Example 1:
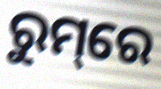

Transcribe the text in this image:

ରୁମ୍‌ରେ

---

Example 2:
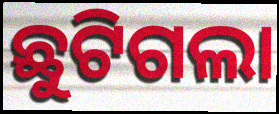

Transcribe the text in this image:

ଛୁଟିଗଲା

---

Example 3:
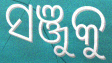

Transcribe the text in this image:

ସଞ୍ଜୁକୁ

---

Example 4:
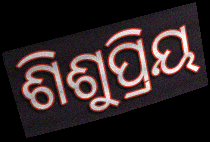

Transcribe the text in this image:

ଶିଶୁପ୍ରିୟ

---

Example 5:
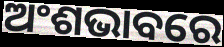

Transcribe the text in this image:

ଅଂଶଭାବରେ